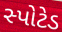
સ્પોટેડ